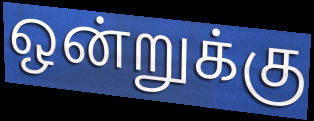
ஒன்றுக்கு